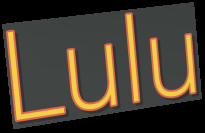
Lulu